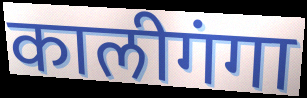
कालीगंगा